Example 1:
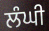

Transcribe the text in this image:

ਲੰਘੀ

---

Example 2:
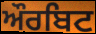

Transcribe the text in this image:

ਔਰਬਿਟ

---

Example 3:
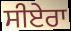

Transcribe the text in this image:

ਸੀਏਰਾ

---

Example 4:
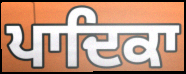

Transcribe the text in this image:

ਪਾਦਿਕਾ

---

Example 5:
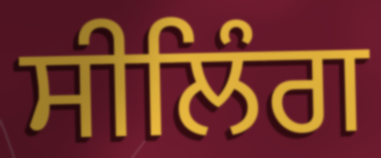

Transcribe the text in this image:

ਸੀਲਿੰਗ